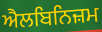
ਐਲਬਿਨਿਜ਼ਮ